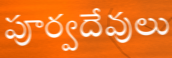
పూర్వదేవులు